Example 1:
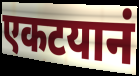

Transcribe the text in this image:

एकटयानं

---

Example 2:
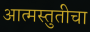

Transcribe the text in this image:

आत्मस्तुतीचा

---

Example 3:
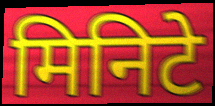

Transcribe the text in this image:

मिनिटे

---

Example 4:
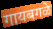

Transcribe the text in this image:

गायबगळे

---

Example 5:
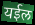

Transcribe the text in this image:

यईल